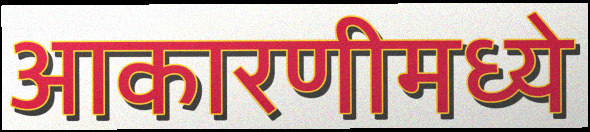
आकारणीमध्ये